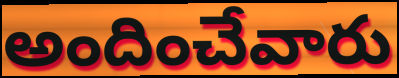
అందించేవారు